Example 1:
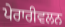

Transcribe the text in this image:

ਪੇਰਾਰੀਵਲਨ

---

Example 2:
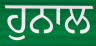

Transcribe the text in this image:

ਹੁਨਾਲ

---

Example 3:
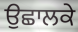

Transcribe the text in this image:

ਉਛਾਲਕੇ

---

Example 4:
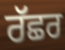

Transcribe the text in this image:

ਰੱਛਰ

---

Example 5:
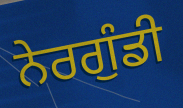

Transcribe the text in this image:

ਨੇਰਗੁੰਡੀ